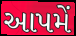
આપમેં